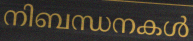
നിബന്ധനകൾ